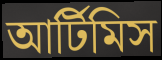
আর্টিমিস